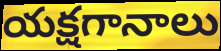
యక్షగానాలు